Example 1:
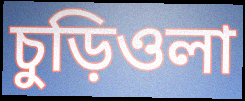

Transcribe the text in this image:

চুড়িওলা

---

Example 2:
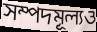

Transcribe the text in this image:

সম্পদমূল্যও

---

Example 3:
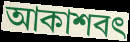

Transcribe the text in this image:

আকাশবৎ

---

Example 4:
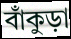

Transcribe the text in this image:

বাঁকুড়া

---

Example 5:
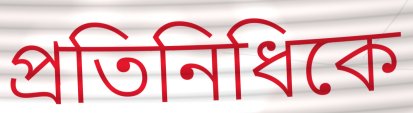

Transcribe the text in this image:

প্রতিনিধিকে